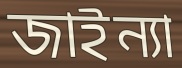
জাইন্যা